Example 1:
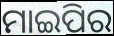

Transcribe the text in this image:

ମାଇପିର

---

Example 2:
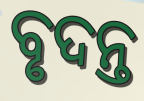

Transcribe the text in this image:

ବୃଦନ୍ତ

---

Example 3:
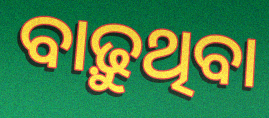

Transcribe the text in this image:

ବାଢ଼ୁଥିବା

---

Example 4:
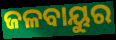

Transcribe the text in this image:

ଜଳବାୟୁର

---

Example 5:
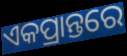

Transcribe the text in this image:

ଏକପ୍ରାନ୍ତରେ